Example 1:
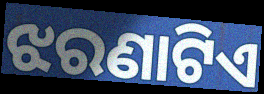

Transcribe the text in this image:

ଝରଣାଟିଏ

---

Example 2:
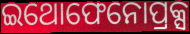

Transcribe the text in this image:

ଇଥୋଫେନୋପ୍ରକ୍ସ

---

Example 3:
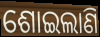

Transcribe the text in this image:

ଶୋଇଲାଣି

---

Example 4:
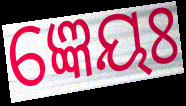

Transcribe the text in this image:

ଜ୍ଞେୟଃ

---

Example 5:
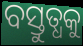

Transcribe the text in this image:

ବସ୍ତୁତ୍ଧକୁ